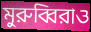
মুরুব্বিরাও